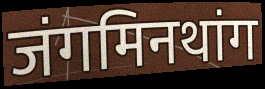
जंगमिनथांग